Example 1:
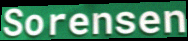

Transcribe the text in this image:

Sorensen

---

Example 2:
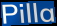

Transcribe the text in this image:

Pilla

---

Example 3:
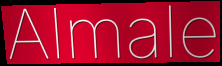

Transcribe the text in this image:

Almale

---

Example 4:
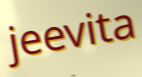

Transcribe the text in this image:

jeevita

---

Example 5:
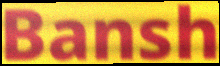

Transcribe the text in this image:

Bansh